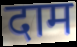
दाम